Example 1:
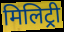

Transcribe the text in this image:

मिलिट्री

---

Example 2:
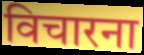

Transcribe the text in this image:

विचारना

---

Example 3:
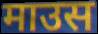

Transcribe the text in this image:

माउस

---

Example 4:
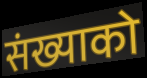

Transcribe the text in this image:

संख्याको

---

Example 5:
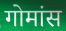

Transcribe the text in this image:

गोमांस